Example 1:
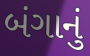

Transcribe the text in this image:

બંગાનું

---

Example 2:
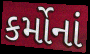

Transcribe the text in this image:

કર્મોનાં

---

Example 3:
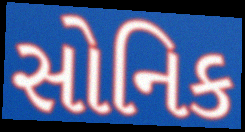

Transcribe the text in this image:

સોનિક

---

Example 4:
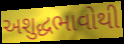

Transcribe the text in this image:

અશુદ્ધભાવોથી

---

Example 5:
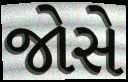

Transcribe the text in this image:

જોસે